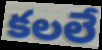
కలలే